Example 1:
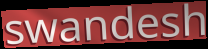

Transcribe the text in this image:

swandesh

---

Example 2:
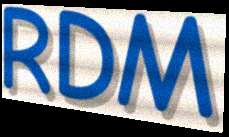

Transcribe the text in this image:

RDM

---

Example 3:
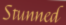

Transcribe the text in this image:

Stunned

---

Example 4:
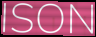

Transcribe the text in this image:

ISON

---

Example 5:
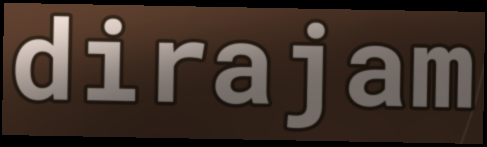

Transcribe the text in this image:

dirajam